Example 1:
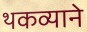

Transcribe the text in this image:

थकव्याने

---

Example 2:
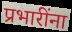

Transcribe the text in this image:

प्रभारींना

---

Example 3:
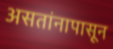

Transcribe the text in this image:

असतांनापासून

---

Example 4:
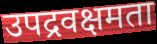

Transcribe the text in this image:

उपद्रवक्षमता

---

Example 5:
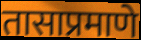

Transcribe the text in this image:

तासाप्रमाणे